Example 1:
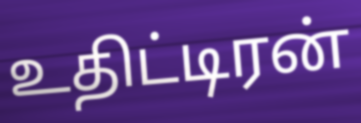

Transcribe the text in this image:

உதிட்டிரன்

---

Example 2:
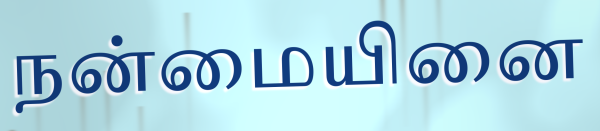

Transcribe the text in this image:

நன்மையினை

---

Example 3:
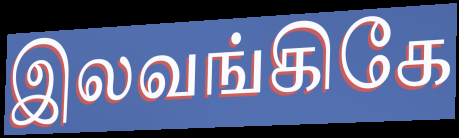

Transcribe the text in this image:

இலவங்கிகே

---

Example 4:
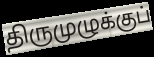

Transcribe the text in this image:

திருமுழுக்குப்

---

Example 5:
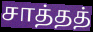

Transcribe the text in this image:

சாத்தத்